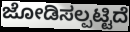
ಜೋಡಿಸಲ್ಪಟ್ಟಿದೆ